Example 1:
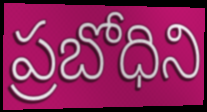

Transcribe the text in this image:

ప్రబోధిని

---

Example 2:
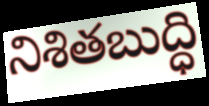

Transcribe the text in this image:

నిశితబుద్ధి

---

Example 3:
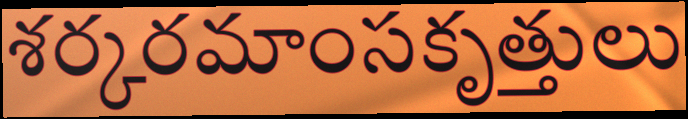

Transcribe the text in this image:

శర్కరమాంసకృత్తులు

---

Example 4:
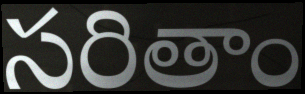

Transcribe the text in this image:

సరితాం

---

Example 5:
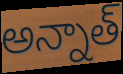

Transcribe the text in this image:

అన్నాత్